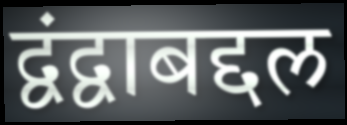
द्वंद्वाबद्दल